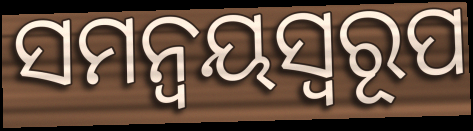
ସମନ୍ୱୟସ୍ୱରୂପ